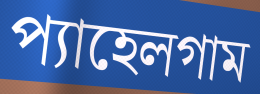
প্যাহেলগাম